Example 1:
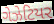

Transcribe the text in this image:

ગેઝેટિયર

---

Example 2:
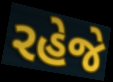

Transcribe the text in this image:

રહેજે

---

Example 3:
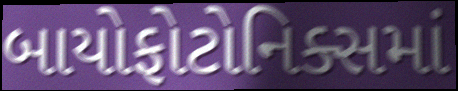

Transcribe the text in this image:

બાયોફોટોનિક્સમાં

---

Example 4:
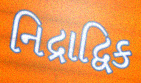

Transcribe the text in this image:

નિદ્રાદ્વિક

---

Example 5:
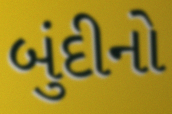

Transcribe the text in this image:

બુંદીનો